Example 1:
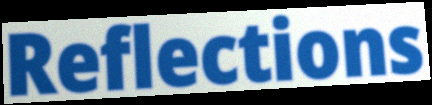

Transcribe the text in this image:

Reflections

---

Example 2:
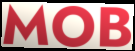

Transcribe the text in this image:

MOB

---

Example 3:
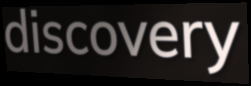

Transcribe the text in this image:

discovery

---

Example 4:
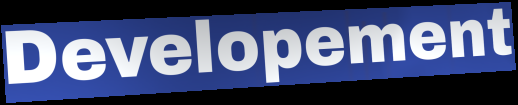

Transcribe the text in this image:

Developement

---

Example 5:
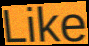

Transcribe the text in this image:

Like